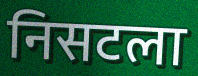
निसटला